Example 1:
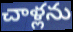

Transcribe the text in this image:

చాళ్లను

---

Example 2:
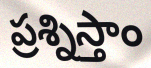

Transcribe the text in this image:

ప్రశ్నిస్తాం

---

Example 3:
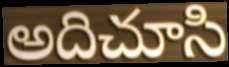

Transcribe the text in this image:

అదిచూసి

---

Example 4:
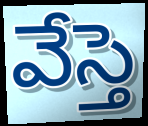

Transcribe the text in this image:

వేస్తె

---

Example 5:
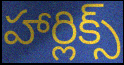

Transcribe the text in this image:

హార్లిక్స్